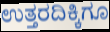
ಉತ್ತರದಿಕ್ಕಿಗೂ